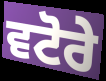
ਵਟੋਰੇ